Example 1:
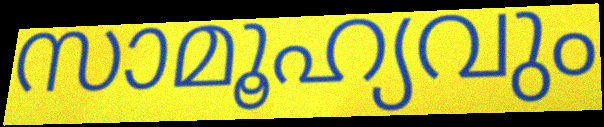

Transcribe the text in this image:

സാമൂഹ്യവും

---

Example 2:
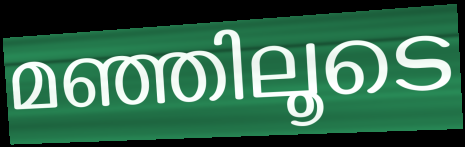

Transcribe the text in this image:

മഞ്ഞിലൂടെ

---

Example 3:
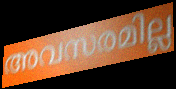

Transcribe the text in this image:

അവസരമില്ല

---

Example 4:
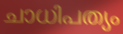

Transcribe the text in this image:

ചാധിപത്യം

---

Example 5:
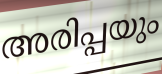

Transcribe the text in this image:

അരിപ്പയും